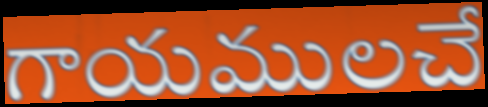
గాయములచే